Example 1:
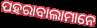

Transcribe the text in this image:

ପହରାବାଲାମାନେ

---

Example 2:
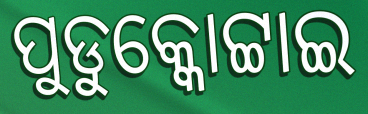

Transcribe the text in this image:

ପୁଡୁକ୍କୋଟ୍ଟାଇ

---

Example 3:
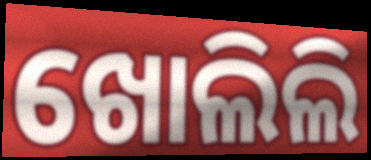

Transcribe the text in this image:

ଖୋଲିଲି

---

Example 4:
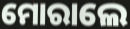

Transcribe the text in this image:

ମୋରାଲେ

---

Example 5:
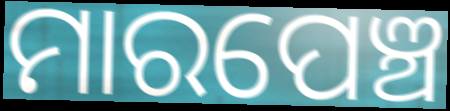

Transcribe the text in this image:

ମାରପେଞ୍ଚ